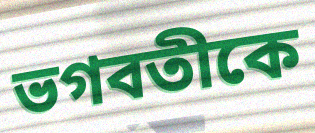
ভগবতীকে